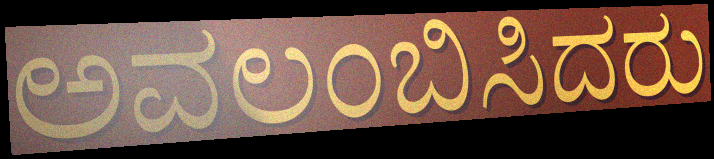
ಅವಲಂಬಿಸಿದರು